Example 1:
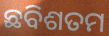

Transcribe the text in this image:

ଛବିଶତମ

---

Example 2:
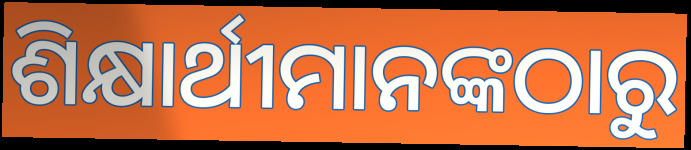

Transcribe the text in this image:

ଶିକ୍ଷାର୍ଥୀମାନଙ୍କଠାରୁ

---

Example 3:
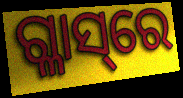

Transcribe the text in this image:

ଗ୍ଳାସ୍‌ରେ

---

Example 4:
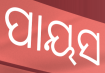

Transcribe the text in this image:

ପାୟସ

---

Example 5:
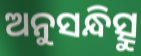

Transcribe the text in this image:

ଅନୁସନ୍ଧିତ୍ସୁ